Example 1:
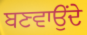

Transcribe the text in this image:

ਬਣਵਾਉਂਦੇ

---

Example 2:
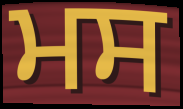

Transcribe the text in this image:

ਮਸ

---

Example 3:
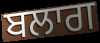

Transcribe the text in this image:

ਬਲਾਗ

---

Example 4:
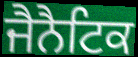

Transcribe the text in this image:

ਜੈਨੈਟਿਕ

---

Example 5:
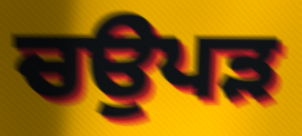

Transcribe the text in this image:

ਚਉਪੜ